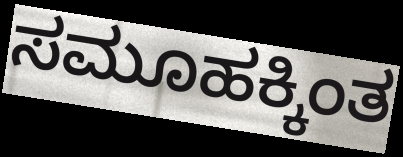
ಸಮೂಹಕ್ಕಿಂತ